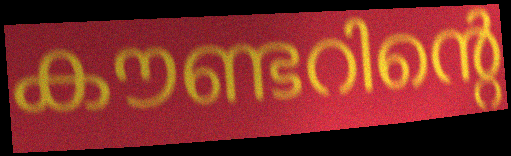
കൗണ്ടറിന്റെ